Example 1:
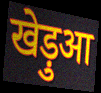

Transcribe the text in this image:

खेड़ुआ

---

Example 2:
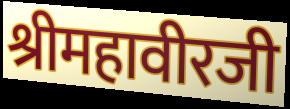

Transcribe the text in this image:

श्रीमहावीरजी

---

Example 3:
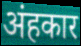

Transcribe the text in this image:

अंहकार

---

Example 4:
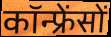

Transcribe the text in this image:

कॉन्फ्रेंसों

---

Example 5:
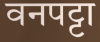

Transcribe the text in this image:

वनपट्टा